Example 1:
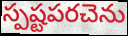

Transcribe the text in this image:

స్పష్టపరచెను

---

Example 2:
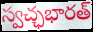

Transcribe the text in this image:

స్వచ్ఛభారత్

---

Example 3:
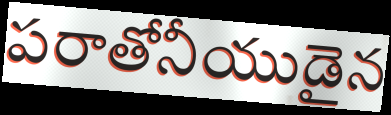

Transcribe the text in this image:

పరాతోనీయుడైన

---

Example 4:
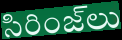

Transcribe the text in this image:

సిరింజ్‌లు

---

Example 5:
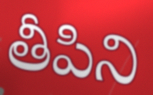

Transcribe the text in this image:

తీపిని